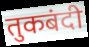
तुकबंदी